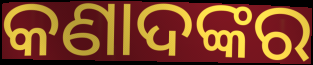
କଣାଦଙ୍କର